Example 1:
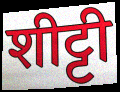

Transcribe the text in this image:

शीट्टी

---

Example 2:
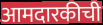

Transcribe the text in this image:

आमदारकीची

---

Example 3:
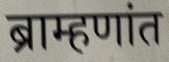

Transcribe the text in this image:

ब्राम्हणांत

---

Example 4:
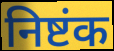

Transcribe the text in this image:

निष्टंक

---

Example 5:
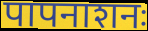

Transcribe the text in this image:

पापनाशनः